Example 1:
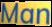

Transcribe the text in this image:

Man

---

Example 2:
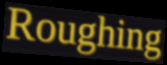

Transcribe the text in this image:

Roughing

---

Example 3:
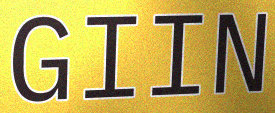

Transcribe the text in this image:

GIIN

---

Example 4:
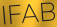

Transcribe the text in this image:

IFAB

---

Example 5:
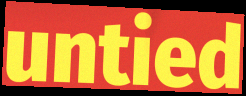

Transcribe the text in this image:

untied